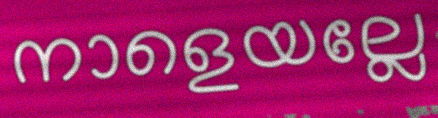
നാളെയല്ലേ